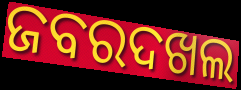
ଜବରଦଖଲ